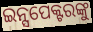
ଇନ୍ସପେକ୍ଟରଙ୍କୁ